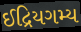
ઈદ્રિયગમ્ય